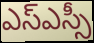
ఎస్ఎస్సీ